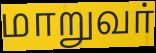
மாறுவர்